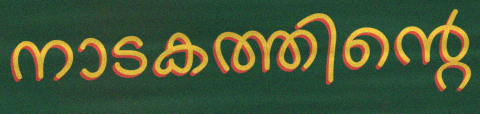
നാടകത്തിന്റെ